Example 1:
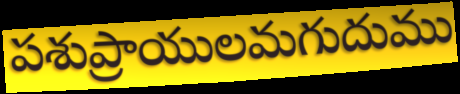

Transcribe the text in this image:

పశుప్రాయులమగుదుము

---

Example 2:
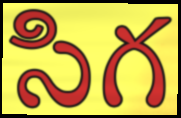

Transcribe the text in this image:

సిగ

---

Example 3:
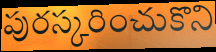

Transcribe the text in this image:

పురస్కరించుకొని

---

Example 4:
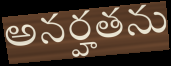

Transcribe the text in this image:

అనర్హతను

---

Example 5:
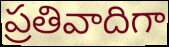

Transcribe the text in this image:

ప్రతివాదిగా